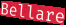
Bellare